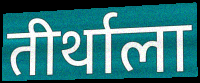
तीर्थाला